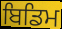
ਬਿਡਿਮ